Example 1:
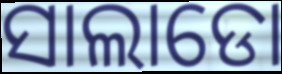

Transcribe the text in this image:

ସାଲାଡୋ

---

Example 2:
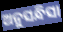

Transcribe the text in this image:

ଅନୁସନ୍ଧିସା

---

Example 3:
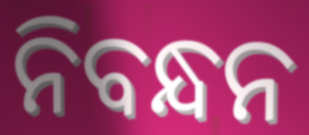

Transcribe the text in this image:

ନିବନ୍ଧନ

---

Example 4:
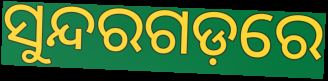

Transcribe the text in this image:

ସୁନ୍ଦରଗଡ଼ରେ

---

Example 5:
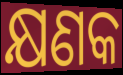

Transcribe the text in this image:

କ୍ଷଣକ